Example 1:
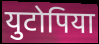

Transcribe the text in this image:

युटोपिया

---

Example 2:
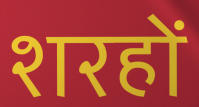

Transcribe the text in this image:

शरहों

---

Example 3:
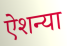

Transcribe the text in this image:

ऐशन्या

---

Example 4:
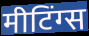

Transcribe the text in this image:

मीटिंग्स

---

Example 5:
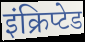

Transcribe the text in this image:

इंक्रिप्टेड